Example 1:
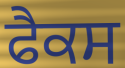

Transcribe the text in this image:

ਫੈਕਸ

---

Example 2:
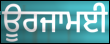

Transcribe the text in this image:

ਊਰਜਾਮਈ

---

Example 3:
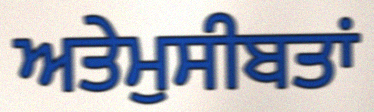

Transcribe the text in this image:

ਅਤੇਮੁਸੀਬਤਾਂ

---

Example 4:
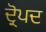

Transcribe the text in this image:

ਦ੍ਰੋਪਦ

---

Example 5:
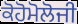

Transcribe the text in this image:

ਕੋਹੋਮੋਲੋਜੀ